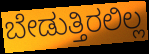
ಬೇಡುತ್ತಿರಲಿಲ್ಲ